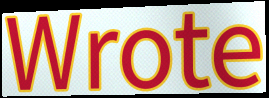
Wrote